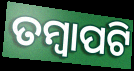
ତମ୍ବାପଟି